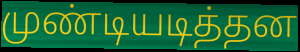
முண்டியடித்தன